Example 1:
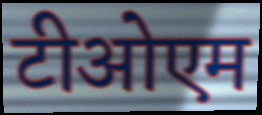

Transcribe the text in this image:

टीओएम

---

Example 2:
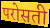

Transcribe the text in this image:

परोसती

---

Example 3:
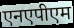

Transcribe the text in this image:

एनएपीएम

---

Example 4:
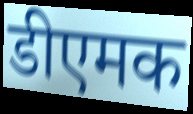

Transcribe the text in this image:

डीएमक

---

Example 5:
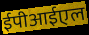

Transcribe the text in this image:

ईपीआईएल